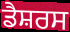
ਡੈਸ਼ਰਸ